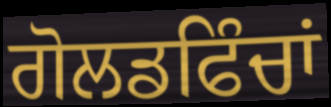
ਗੋਲਡਫਿੰਚਾਂ